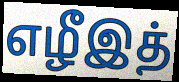
எழீஇத்